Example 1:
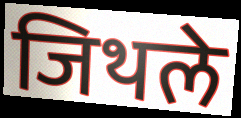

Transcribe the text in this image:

जिथले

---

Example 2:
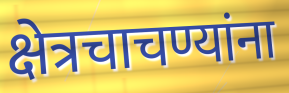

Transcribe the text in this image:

क्षेत्रचाचण्यांना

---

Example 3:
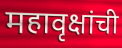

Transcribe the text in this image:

महावृक्षांची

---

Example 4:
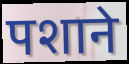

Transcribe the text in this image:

पशाने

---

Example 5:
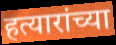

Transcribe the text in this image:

हत्यारांच्या